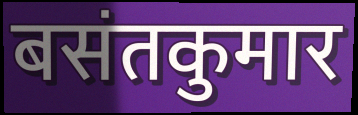
बसंतकुमार